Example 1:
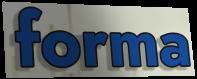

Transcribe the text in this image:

forma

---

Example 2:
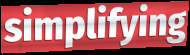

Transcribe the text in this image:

simplifying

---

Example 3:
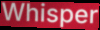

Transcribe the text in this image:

Whisper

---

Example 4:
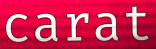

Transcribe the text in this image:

carat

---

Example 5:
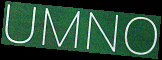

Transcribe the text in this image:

UMNO